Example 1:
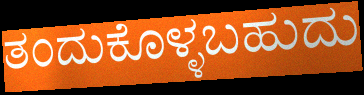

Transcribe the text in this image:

ತಂದುಕೊಳ್ಳಬಹುದು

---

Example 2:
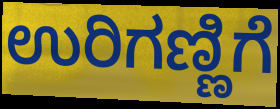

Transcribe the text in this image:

ಉರಿಗಣ್ಣಿಗೆ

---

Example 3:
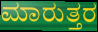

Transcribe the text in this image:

ಮಾರುತ್ತರ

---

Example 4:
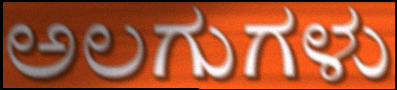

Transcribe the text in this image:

ಅಲಗುಗಳು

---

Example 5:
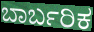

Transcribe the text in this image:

ಬಾರ್ಬರಿಕ